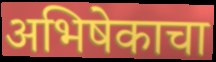
अभिषेकाचा